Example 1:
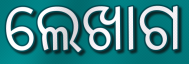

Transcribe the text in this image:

ଲେଖାଗ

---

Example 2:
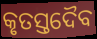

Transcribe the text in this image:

କୃତସ୍ତଦୈବ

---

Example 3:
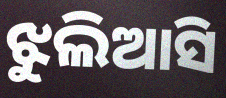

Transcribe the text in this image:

ଝୁଲିଆସି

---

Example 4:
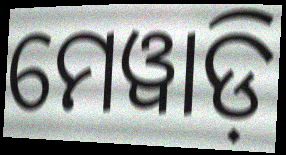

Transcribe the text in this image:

ମେୱାଡ଼ି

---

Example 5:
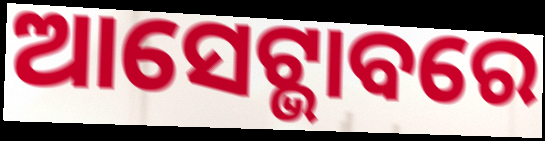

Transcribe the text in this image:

ଆସେଟ୍ଭାବରେ